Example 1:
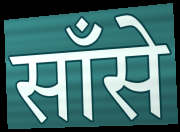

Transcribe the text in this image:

साँसे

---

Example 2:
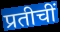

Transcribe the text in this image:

प्रतीचीं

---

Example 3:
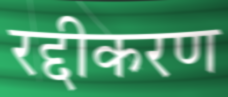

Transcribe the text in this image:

रद्दीकरण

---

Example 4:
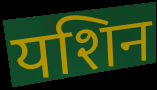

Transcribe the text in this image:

यशिन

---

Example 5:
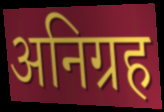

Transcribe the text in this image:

अनिग्रह